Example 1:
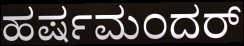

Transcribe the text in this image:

ಹರ್ಷಮಂದರ್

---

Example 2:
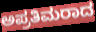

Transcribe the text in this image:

ಅಪ್ರತಿಮರಾದ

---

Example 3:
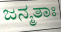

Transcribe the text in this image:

ಜನ್ಮತಾಃ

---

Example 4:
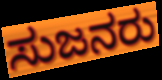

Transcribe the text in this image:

ಸುಜನರು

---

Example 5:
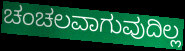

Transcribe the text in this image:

ಚಂಚಲವಾಗುವುದಿಲ್ಲ